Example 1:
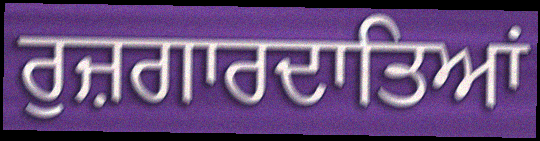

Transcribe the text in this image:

ਰੁਜ਼ਗਾਰਦਾਤਿਆਂ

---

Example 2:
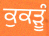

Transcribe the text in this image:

ਕੁਕੜੂੰ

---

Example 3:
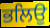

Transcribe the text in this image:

ਭਲਿਉ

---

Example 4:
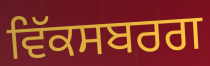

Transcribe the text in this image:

ਵਿੱਕਸਬਰਗ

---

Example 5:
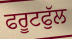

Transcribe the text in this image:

ਫਰੂਟਫੁੱਲ